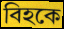
বিহকে